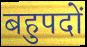
बहुपदों